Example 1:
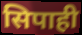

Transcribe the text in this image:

सिपाही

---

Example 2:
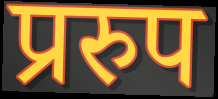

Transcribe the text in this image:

प्ररुप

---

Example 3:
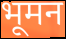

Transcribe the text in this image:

भूमन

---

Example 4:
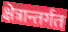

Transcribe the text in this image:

क्षेत्रान्‍तर्गत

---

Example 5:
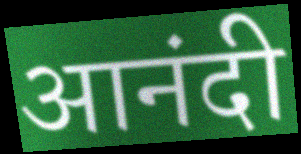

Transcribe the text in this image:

आनंदी